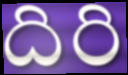
దిరి